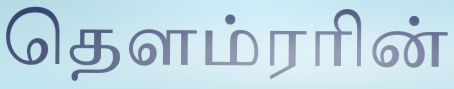
தௌம்ரரின்